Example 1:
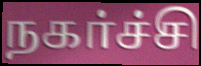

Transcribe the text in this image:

நகர்ச்சி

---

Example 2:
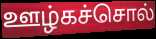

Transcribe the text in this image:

ஊழ்கச்சொல்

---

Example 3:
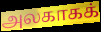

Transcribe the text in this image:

அலகாகக்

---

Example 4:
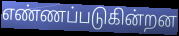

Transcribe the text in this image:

எண்ணப்படுகின்றன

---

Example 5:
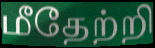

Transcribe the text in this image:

மீதேற்றி